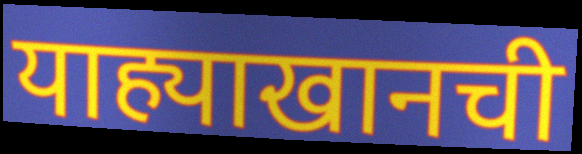
याह्याखानची